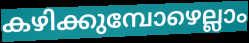
കഴിക്കുമ്പോഴെല്ലാം